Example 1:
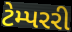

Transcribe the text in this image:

ટેમ્પરરી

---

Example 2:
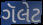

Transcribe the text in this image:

ગૅલેટ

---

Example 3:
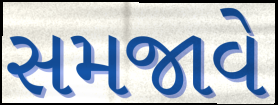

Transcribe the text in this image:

સમજાવે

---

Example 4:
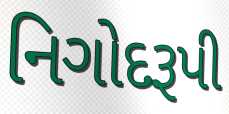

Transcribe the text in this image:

નિગોદરૂપી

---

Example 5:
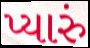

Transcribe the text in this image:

પ્યારું